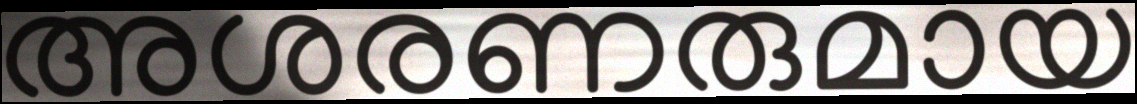
അശരണരുമായ